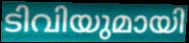
ടിവിയുമായി